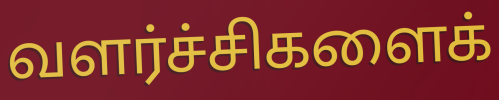
வளர்ச்சிகளைக்